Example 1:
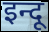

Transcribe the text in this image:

इन्दू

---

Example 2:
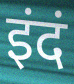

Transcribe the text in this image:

इंदं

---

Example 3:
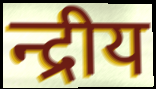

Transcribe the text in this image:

न्द्रीय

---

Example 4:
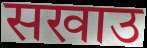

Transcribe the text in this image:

सखाउ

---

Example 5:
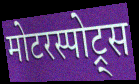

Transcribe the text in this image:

मोटरस्पोट्र्स